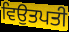
ਵਿਉਤਪਤੀ